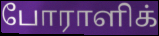
போராளிக்